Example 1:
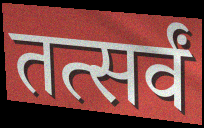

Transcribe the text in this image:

तत्सर्वं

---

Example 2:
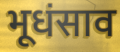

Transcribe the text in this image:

भूधंसाव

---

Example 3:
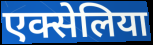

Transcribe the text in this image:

एक्सेलिया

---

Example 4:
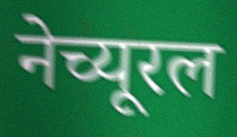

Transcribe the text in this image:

नेच्यूरल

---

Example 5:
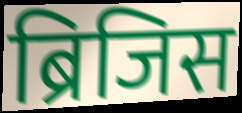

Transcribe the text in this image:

ब्रिजिस